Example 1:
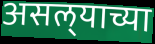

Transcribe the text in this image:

असल्याच्या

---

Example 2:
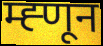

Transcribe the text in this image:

म्ह्णून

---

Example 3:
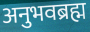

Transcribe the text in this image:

अनुभवब्रह्म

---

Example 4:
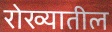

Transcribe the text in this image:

रोख्यातील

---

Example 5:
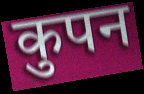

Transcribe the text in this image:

कुपन